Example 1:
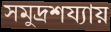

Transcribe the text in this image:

সমুদ্রশয্যায়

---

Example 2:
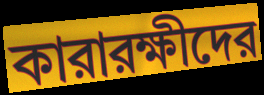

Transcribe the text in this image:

কারারক্ষীদের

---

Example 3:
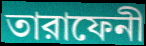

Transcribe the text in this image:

তারাফেনী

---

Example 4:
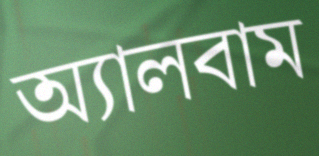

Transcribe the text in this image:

অ্যালবাম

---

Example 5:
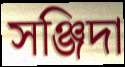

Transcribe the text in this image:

সঞ্জিদা